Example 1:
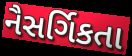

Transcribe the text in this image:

નૈસર્ગિકતા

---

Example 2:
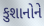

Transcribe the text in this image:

કુશાનોને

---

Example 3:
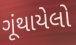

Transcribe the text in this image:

ગૂંથાયેલો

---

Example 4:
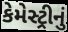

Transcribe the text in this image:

કેમેસ્ટ્રીનું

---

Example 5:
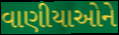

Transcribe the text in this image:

વાણીયાઓને